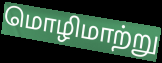
மொழிமாற்று